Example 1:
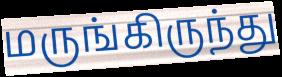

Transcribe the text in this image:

மருங்கிருந்து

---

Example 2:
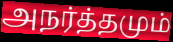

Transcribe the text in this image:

அநர்த்தமும்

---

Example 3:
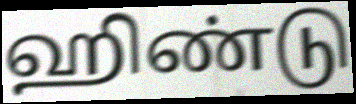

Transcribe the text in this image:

ஹிண்டு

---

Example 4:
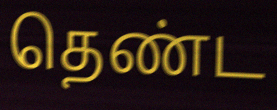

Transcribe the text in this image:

தெண்ட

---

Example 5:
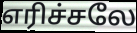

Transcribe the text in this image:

எரிச்சலே